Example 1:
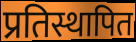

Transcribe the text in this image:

प्रतिस्थापित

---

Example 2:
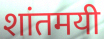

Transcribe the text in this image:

शांतमयी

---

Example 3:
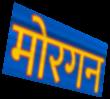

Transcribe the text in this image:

मोरगन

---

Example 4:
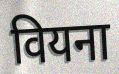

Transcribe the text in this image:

वियना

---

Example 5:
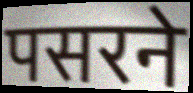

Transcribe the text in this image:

पसरने